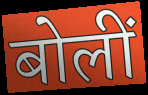
बोलीं